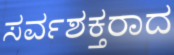
ಸರ್ವಶಕ್ತರಾದ